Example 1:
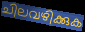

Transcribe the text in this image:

ചിലവഴിക്കുക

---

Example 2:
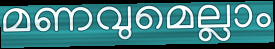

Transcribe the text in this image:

മണവുമെല്ലാം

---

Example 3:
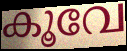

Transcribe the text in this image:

കൂവേ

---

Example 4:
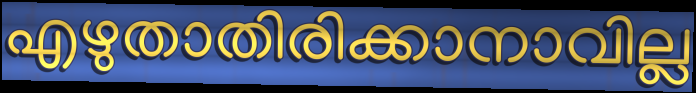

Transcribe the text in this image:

എഴുതാതിരിക്കാനാവില്ല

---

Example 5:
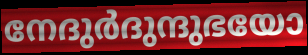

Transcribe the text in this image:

നേദുർദുന്ദുഭയോ